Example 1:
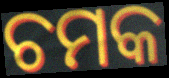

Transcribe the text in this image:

ଚମକ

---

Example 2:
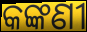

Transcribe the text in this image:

କଙ୍କଣୀ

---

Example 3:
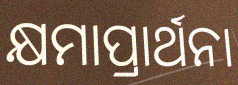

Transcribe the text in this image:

କ୍ଷମାପ୍ରାର୍ଥନା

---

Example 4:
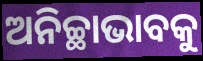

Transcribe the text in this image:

ଅନିଚ୍ଛାଭାବକୁ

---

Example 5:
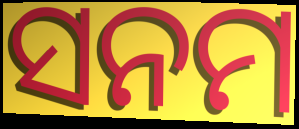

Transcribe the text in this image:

ସନମ